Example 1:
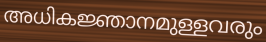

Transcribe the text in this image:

അധികജ്ഞാനമുള്ളവരും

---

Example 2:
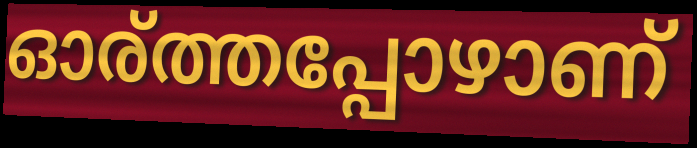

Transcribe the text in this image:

ഓര്ത്തപ്പോഴാണ്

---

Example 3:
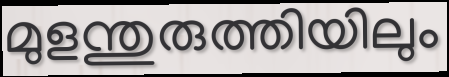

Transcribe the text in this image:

മുളന്തുരുത്തിയിലും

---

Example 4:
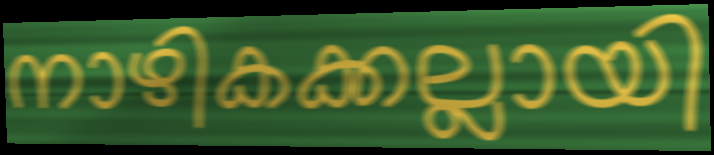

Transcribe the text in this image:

നാഴികക്കല്ലായി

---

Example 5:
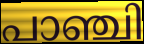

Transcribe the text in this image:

പാഞ്ചി